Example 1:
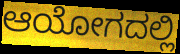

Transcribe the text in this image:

ಆಯೋಗದಲ್ಲಿ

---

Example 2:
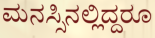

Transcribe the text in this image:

ಮನಸ್ಸಿನಲ್ಲಿದ್ದರೂ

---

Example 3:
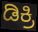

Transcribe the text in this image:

ಡಿಕ್ರಿ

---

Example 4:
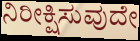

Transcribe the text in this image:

ನಿರೀಕ್ಷಿಸುವುದೇ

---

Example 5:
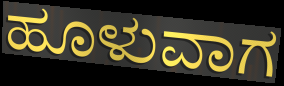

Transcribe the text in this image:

ಹೂಳುವಾಗ